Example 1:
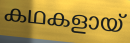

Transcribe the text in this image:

കഥകളായ്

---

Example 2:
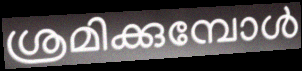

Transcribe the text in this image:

ശ്രമിക്കുമ്പോൾ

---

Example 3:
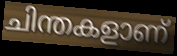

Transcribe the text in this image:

ചിന്തകളാണ്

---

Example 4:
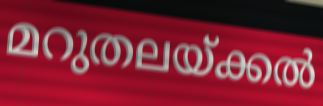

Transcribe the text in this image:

മറുതലയ്ക്കൽ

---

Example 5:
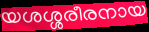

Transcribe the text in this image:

യശശ്ശരീരനായ